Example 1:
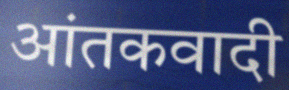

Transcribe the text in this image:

आंतकवादी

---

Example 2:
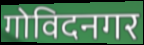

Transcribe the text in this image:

गोविदनगर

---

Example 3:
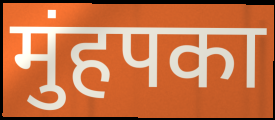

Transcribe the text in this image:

मुंहपका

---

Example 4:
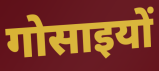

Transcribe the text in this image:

गोसाइयों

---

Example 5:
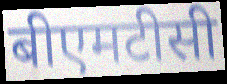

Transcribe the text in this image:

बीएमटीसी